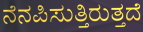
ನೆನಪಿಸುತ್ತಿರುತ್ತದೆ